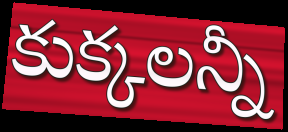
కుక్కలన్నీ